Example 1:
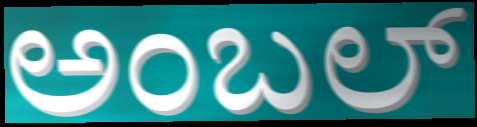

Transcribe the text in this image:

ಅಂಬಲ್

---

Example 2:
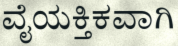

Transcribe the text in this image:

ವೈಯಕ್ತಿಕವಾಗಿ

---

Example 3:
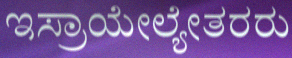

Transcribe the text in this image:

ಇಸ್ರಾಯೇಲ್ಯೇತರರು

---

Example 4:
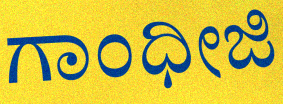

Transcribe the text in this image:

ಗಾಂಧೀಜಿ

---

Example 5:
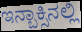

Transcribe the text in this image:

ಇನ್ಬಾಕ್ಸಿನಲ್ಲಿ